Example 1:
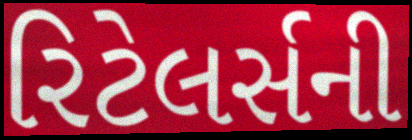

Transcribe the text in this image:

રિટેલર્સની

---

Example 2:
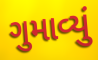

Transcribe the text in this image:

ગુમાવ્યું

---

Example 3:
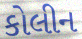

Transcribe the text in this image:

કોલીન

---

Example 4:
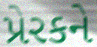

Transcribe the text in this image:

પ્રેરકને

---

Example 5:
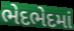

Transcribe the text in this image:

ભેદભેદમાં